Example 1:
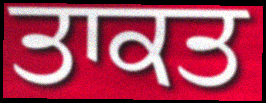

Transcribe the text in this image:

ਤਾਕਤ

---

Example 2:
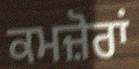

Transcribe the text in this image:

ਕਮਜ਼ੋਰਾਂ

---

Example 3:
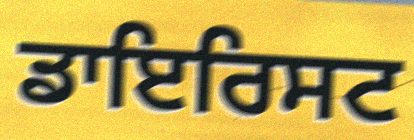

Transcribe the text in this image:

ਡਾਇਰਿਸਟ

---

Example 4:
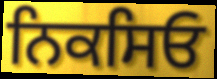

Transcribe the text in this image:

ਨਿਕਸਿਓ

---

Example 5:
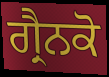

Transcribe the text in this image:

ਗ੍ਰੈਨਕੋ